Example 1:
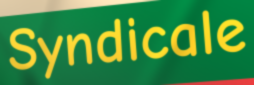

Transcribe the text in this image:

Syndicale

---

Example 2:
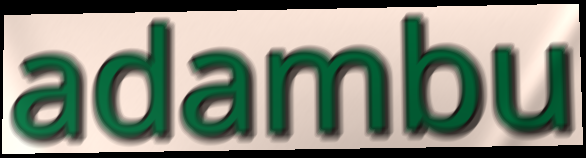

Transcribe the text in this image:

adambu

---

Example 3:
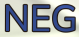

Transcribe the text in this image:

NEG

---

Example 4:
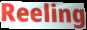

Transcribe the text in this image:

Reeling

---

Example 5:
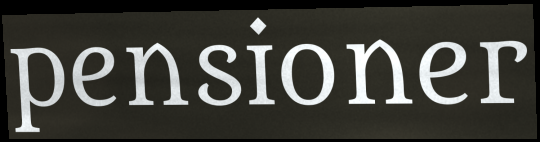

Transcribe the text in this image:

pensioner